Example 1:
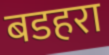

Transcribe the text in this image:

बडहरा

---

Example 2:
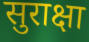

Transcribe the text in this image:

सुराक्षा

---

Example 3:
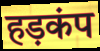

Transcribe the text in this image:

हड़कंप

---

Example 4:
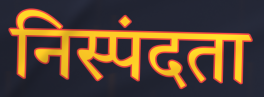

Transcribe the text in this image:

निस्पंदता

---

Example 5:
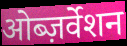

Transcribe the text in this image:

ओब्ज़र्वेशन